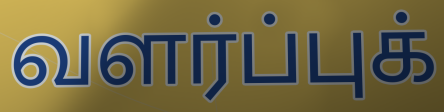
வளர்ப்புக்